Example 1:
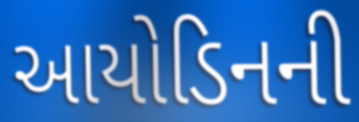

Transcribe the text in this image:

આયોડિનની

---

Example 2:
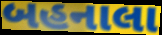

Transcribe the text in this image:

બહનાલા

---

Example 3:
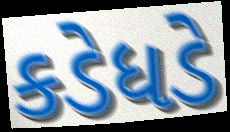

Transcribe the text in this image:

કડેધડે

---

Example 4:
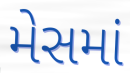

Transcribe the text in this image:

મેસમાં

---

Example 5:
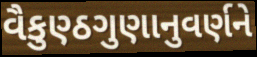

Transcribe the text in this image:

વૈકુણ્ઠગુણાનુવર્ણને